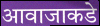
आवाजाकडे